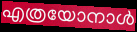
എത്രയോനാൾ